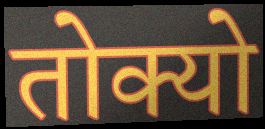
तोक्यो